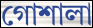
গোশালা